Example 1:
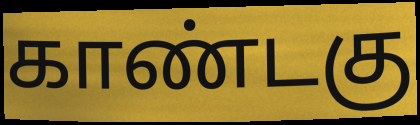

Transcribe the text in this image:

காண்டகு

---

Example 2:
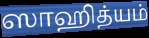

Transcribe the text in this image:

ஸாஹித்யம்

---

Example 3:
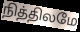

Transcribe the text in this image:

நித்திலமே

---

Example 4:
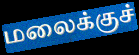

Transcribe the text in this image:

மலைக்குச்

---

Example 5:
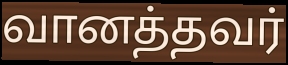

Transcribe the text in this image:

வானத்தவர்